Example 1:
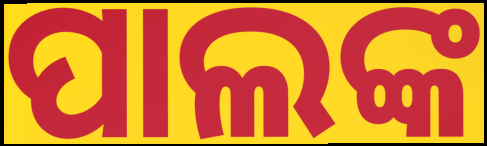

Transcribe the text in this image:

ପାଲଙ୍କ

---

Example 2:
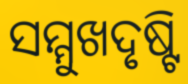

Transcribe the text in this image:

ସମ୍ମୁଖଦୃଷ୍ଟି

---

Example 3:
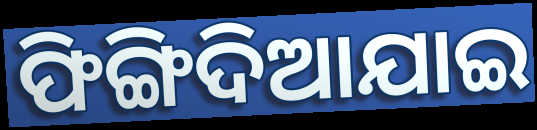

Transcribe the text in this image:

ଫିଙ୍ଗିଦିଆଯାଇ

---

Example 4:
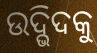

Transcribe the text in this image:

ଉଦ୍ଭିଦକୁ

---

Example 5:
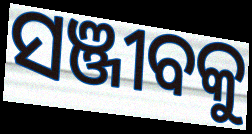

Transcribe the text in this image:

ସଞ୍ଜୀବକୁ